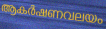
ആകർഷണവലയം